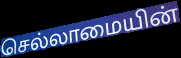
செல்லாமையின்